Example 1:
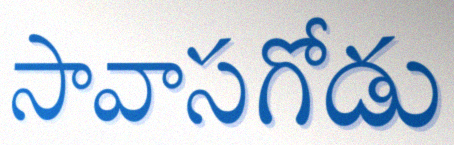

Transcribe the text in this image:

సావాసగోడు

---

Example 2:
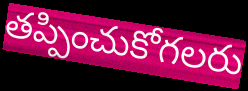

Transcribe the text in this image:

తప్పించుకోగలరు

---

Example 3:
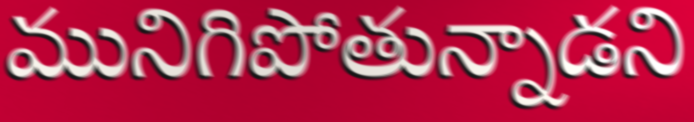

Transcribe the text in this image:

మునిగిపోతున్నాడని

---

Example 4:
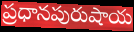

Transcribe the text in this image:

ప్రధానపురుషాయ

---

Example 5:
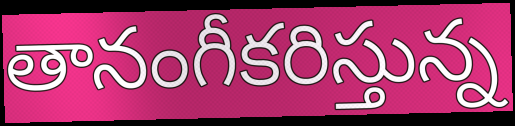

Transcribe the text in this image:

తానంగీకరిస్తున్న